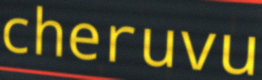
cheruvu